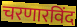
चरणारविंद